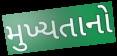
મુખ્યતાનો